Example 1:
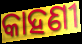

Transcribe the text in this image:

କାହଣୀ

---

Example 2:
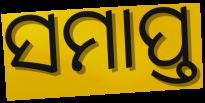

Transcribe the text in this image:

ସମାପ୍ତ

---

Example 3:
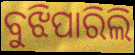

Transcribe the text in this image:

ବୁଝିପାରିଲି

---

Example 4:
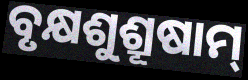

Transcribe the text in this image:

ବୃକ୍ଷଶୁଶ୍ରୂଷାମ୍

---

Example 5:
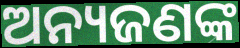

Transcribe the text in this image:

ଅନ୍ୟଜଣଙ୍କ